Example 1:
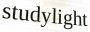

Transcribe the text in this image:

studylight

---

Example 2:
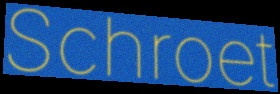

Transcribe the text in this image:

Schroet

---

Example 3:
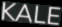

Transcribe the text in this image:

KALE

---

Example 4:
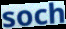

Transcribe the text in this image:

soch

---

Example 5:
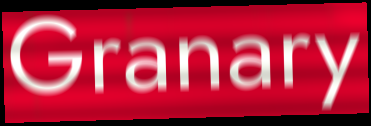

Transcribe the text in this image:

Granary